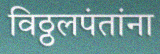
विठ्ठलपंतांना